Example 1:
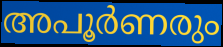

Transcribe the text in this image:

അപൂർണരും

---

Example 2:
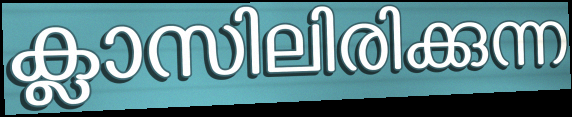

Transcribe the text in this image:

ക്ലാസിലിരിക്കുന്ന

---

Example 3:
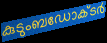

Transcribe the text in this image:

കുടുംബഡോക്ടർ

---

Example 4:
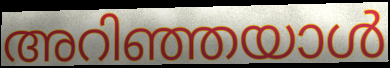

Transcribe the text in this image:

അറിഞ്ഞയാൾ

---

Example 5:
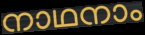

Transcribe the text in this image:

നാഥനാം